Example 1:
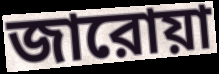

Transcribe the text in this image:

জারোয়া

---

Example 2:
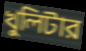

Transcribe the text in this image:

খুলিটার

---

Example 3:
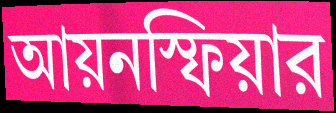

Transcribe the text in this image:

আয়নস্ফিয়ার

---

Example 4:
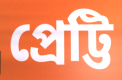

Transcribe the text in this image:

প্রেট্টি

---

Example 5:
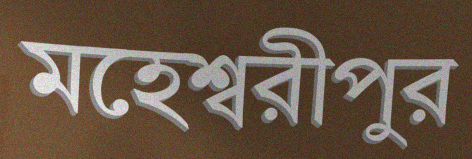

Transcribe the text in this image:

মহেশ্বরীপুর